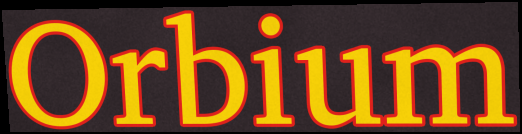
Orbium